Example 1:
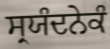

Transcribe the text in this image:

ਸ੍ਰਯੰਦਨੇਕੰ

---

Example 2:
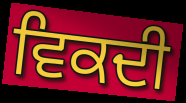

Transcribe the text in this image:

ਵਿਕਦੀ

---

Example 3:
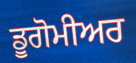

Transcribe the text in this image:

ਡੂਗੋਮੀਅਰ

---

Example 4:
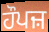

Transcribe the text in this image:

ਹੌਪਜ਼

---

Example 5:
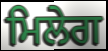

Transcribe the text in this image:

ਮਿਲੇਗ